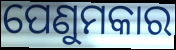
ପେଣୁମକାର